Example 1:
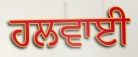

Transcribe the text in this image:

ਹਲਵਾਈ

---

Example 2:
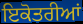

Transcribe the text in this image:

ਇਕੋਤਰੀਆਂ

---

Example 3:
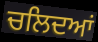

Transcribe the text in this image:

ਚਲਿਦਆਂ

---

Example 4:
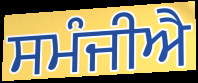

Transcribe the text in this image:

ਸਮੰਜੀਐ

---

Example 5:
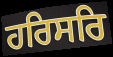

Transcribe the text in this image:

ਹਰਿਸਰਿ